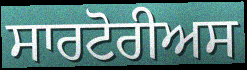
ਸਾਰਟੋਰੀਅਸ